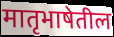
मातृभाषेतील